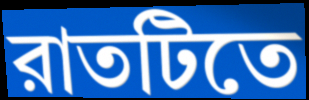
রাতটিতে